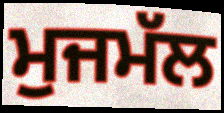
ਮੁਜਮੱਲ